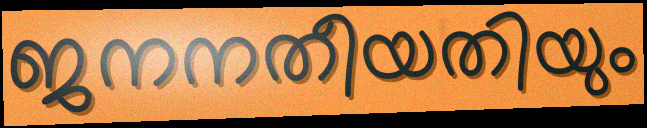
ജനനതീയതിയും